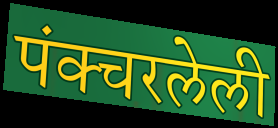
पंक्चरलेली